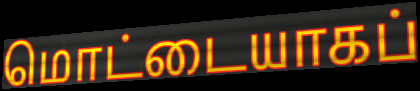
மொட்டையாகப்